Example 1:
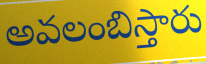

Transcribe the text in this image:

అవలంబిస్తారు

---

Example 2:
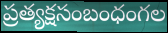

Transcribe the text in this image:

ప్రత్యక్షసంబంధంగల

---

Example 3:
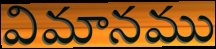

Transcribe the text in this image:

విమానము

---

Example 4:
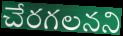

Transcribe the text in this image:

చేరగలనని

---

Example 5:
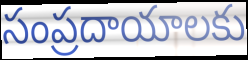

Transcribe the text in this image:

సంప్రదాయాలకు